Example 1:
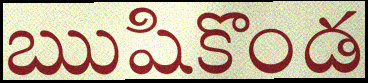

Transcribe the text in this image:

ఋషికొండ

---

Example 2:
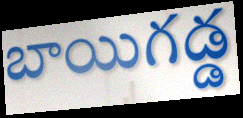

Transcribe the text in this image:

బాయిగడ్డ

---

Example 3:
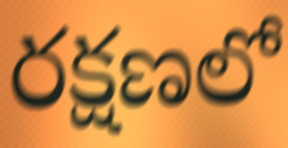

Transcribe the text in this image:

రక్షణలో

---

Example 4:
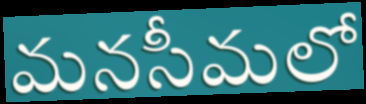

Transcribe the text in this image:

మనసీమలో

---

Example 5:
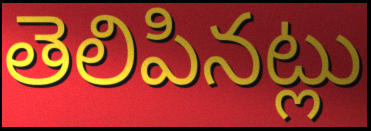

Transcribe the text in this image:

తెలిపినట్లు